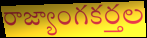
రాజ్యాంగకర్తల